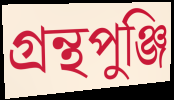
গ্রন্থপুঞ্জি